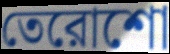
তেরোশো